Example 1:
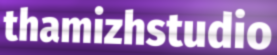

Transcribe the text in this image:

thamizhstudio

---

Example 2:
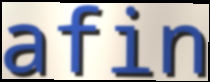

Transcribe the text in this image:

afin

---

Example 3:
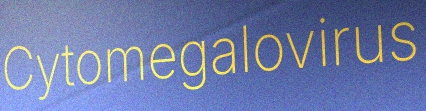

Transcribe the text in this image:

Cytomegalovirus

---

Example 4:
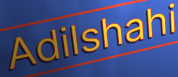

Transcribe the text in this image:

Adilshahi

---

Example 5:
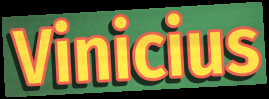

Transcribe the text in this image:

Vinicius